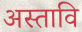
अस्तावि